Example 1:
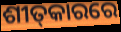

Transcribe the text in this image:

ଶୀତ୍‌କାରରେ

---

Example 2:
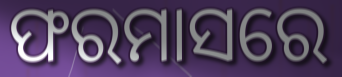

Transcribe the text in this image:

ଫରମାସରେ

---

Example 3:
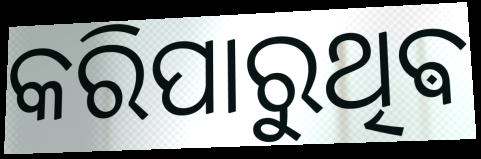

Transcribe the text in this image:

କରିପାରୁଥିଵ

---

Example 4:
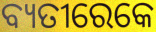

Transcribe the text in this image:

ବ୍ୟତୀରେକେ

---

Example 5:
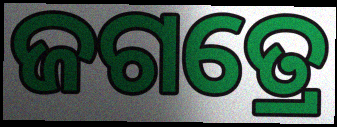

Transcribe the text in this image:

ଜଗତ୍ରେ